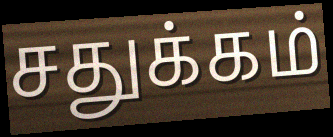
சதுக்கம்